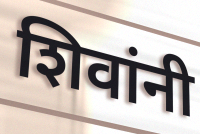
शिवांनी